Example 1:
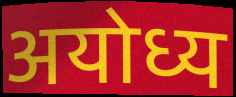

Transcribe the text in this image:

अयोध्य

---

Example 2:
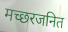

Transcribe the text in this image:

मच्छरजनित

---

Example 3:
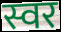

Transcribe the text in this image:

स्‍वर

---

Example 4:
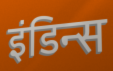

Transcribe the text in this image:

इंडिन्स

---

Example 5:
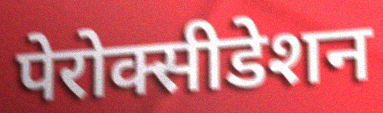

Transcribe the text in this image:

पेरोक्सीडेशन